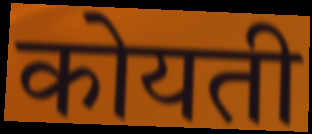
कोयती